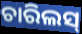
ଚାରିଲସ୍